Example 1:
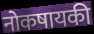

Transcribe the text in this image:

नोकषायकी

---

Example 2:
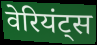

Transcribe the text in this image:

वेरियंट्स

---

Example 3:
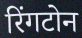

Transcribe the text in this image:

रिंगटोन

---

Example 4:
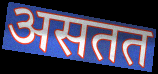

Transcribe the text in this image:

असतत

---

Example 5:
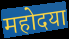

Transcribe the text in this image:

महोदया